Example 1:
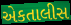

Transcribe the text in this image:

એકતાલીસ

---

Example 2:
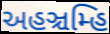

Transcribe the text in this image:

અહઞ્ચમ્હિ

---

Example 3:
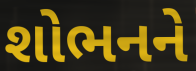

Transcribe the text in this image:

શોભનને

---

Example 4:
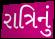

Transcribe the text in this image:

રાત્રિનું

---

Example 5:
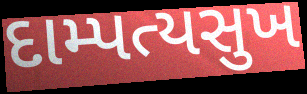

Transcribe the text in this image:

દામ્પત્યસુખ